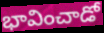
భావించాడో